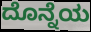
ದೊನ್ನೆಯ